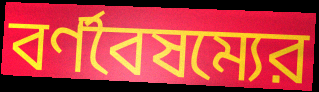
বর্ণবৈষম্যের